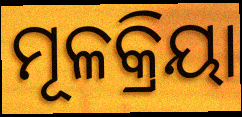
ମୂଳକ୍ରିୟା